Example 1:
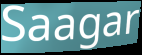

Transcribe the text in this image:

Saagar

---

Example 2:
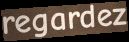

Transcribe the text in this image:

regardez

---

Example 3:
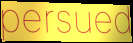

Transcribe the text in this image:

persued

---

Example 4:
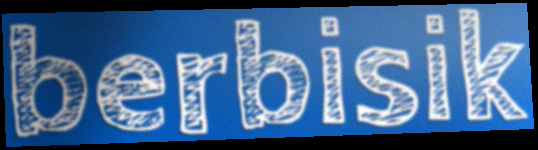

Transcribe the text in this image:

berbisik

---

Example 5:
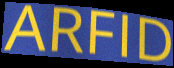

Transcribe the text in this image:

ARFID